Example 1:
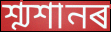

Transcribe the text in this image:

শ্মশানৰ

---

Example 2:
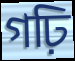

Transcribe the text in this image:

গঢ়ি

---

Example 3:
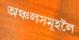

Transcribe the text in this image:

অঞ্চলসমূহলৈ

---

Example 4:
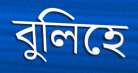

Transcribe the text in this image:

বুলিহে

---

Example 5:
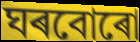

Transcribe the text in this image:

ঘৰবোৰো